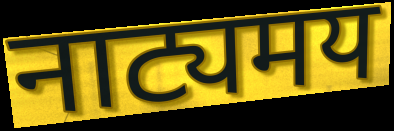
नाट्यमय